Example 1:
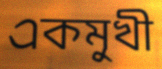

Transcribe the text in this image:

একমুখী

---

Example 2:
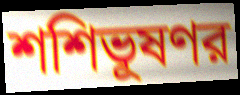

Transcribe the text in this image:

শশিভূষণর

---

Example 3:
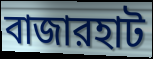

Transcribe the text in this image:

বাজারহাট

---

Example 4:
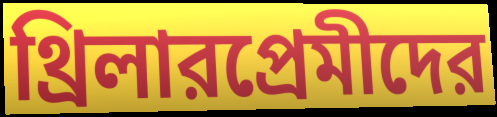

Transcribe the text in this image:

থ্রিলারপ্রেমীদের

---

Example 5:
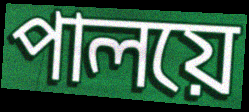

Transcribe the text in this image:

পালয়ে